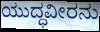
ಯುದ್ಧವೀರನು